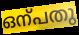
ഒന്പതു